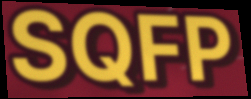
SQFP